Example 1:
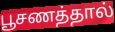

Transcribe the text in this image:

பூசணத்தால்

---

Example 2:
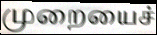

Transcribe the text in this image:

முறையைச்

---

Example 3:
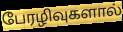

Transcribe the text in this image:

பேரழிவுகளால்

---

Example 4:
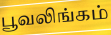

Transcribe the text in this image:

பூவலிங்கம்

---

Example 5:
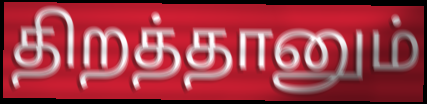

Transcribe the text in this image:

திறத்தானும்